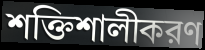
শক্তিশালীকরণ